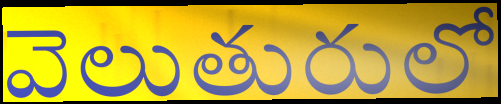
వెలుతురులో